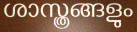
ശാസ്ത്രങ്ങളും